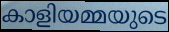
കാളിയമ്മയുടെ